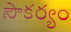
సౌకర్యం